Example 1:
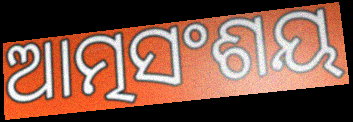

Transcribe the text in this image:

ଆତ୍ମସଂଶୟ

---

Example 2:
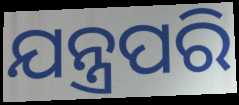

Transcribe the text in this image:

ଯନ୍ତ୍ରପରି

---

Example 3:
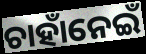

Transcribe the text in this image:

ଚାହାଁନେଇଁ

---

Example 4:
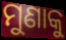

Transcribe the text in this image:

ମୁଣାକୁ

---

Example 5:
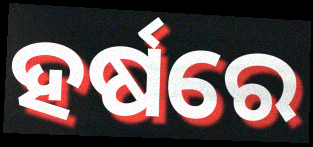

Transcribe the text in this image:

ହର୍ଷରେ